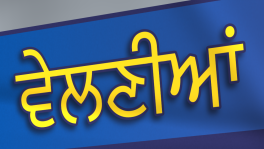
ਵੇਲਣੀਆਂ